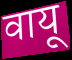
वायू